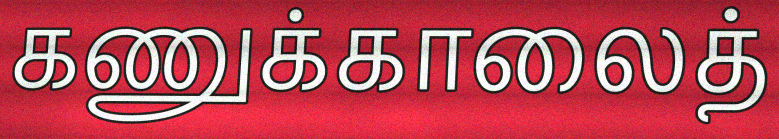
கணுக்காலைத்